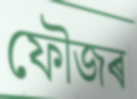
ফৌজৰ